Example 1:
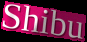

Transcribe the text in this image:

Shibu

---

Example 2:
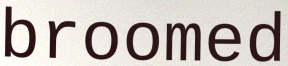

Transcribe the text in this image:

broomed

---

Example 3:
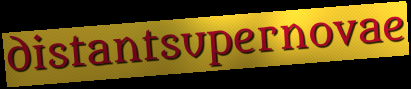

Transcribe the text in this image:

distantsupernovae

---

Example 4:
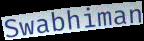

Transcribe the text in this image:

Swabhiman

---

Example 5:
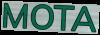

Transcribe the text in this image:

MOTA